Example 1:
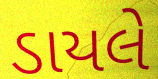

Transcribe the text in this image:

ડાયલે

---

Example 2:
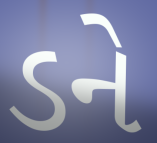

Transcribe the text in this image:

ડને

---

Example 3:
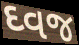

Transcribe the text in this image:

ઘ્વજ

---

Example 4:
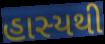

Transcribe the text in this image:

હાસ્યથી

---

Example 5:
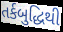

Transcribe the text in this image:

તર્કબુદ્ધિથી